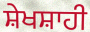
ਸ਼ੇਖਸ਼ਾਹੀ